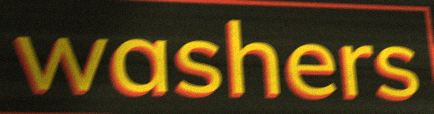
washers